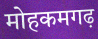
मोहकमगढ़